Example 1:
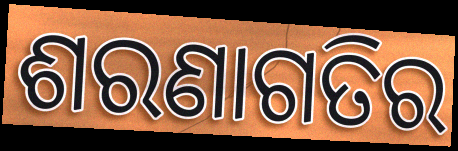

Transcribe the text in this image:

ଶରଣାଗତିର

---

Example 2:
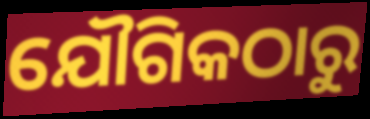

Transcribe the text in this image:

ଯୌଗିକଠାରୁ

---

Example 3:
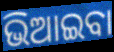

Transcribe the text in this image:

ଭିଆଇବା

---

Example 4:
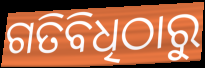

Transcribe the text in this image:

ଗତିବିଧିଠାରୁ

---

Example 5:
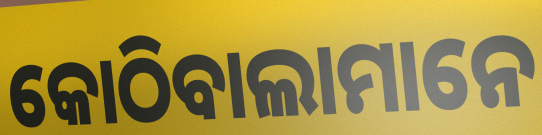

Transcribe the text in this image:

କୋଠିବାଲାମାନେ